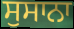
ਸੁਸਾਨਾ